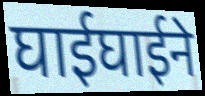
घाईघाईने